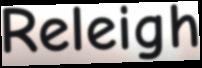
Releigh